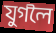
যুগলৈ